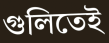
গুলিতেই